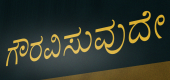
ಗೌರವಿಸುವುದೇ